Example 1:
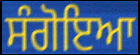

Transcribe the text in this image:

ਸੰਗੋਇਆ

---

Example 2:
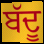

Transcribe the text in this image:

ਬੱਦੂ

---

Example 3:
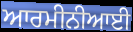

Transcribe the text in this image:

ਆਰਮੀਨੀਆਈ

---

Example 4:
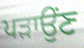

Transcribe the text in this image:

ਪੜਾਉਂਣ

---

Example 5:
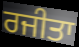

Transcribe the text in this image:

ਰਜੀਤਾ